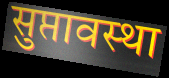
सुप्तावस्था